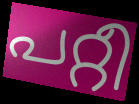
പറ്റീ